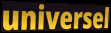
universel